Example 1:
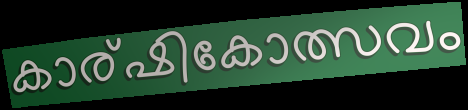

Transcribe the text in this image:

കാര്ഷികോത്സവം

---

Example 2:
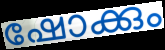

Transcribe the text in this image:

ഷോക്കും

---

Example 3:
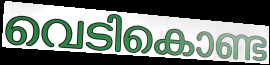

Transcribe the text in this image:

വെടികൊണ്ട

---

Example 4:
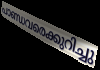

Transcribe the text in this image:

പാണ്ഡവരെക്കുറിച്ചു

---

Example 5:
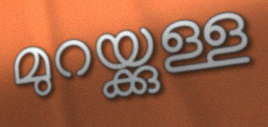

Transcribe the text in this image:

മുറയ്ക്കുള്ള